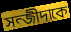
সন্জীদাকে